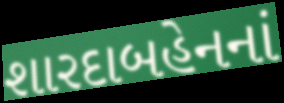
શારદાબહેનનાં